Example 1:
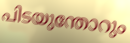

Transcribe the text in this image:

പിടയുന്തോറും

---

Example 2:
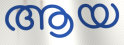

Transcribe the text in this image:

ആയ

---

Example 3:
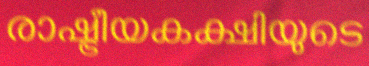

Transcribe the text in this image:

രാഷ്ട്രീയകക്ഷിയുടെ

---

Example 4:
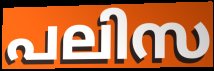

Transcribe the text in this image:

പലിസ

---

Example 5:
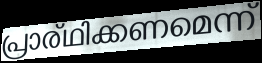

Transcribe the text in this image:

പ്രാര്ഥിക്കണമെന്ന്